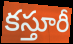
కస్తూరీ